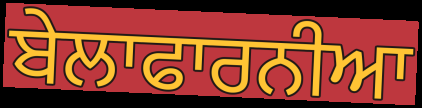
ਬੇਲਾਫਾਰਨੀਆ